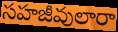
సహజీవులారా